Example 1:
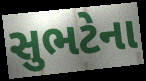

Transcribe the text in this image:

સુભટેના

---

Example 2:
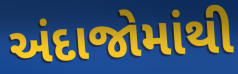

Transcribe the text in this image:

અંદાજોમાંથી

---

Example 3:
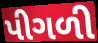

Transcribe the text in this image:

પીગળી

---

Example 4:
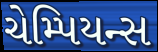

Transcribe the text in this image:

ચેમ્પિયન્સ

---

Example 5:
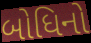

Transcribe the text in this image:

બોધિનો